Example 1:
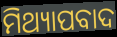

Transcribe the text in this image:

ମିଥ୍ୟାପବାଦ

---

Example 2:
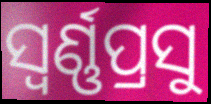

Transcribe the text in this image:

ସ୍ୱର୍ଣ୍ଣପ୍ରସୁ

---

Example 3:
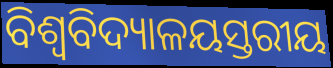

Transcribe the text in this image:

ବିଶ୍ଵବିଦ୍ୟାଳୟସ୍ତରୀୟ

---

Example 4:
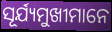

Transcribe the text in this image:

ସୂର୍ଯ୍ୟମୁଖୀମାନେ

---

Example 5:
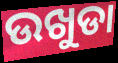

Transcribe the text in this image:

ଉଖୁଡା